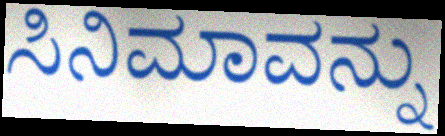
ಸಿನಿಮಾವನ್ನು